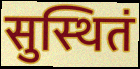
सुस्थितं